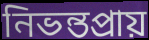
নিভন্তপ্রায়